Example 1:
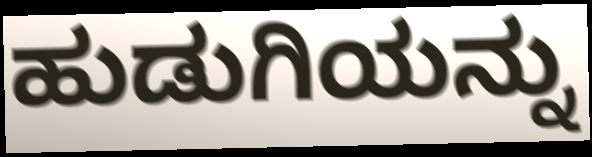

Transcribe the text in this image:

ಹುಡುಗಿಯನ್ನು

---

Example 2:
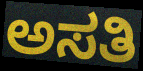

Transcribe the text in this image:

ಅಸತಿ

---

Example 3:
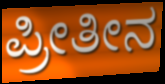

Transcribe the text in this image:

ಪ್ರೀತೀನ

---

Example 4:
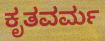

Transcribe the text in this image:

ಕೃತವರ್ಮ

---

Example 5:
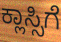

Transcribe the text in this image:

ಕ್ಲಾಸ್ಸಿಗೆ